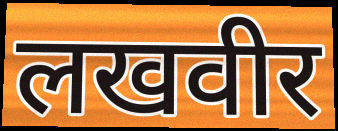
लखवीर